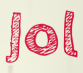
Jol